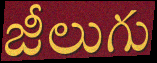
జీలుగు